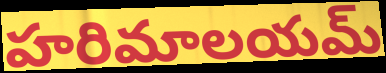
హరిమాలయమ్